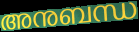
അനുബന്ധ